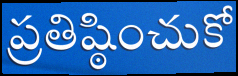
ప్రతిష్ఠించుకో